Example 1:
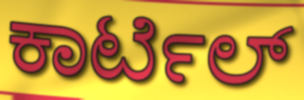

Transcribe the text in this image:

ಕಾರ್ಟೆಲ್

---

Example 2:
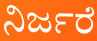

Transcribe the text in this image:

ನಿರ್ಜರೆ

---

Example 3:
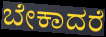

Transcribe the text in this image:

ಬೇಕಾದರೆ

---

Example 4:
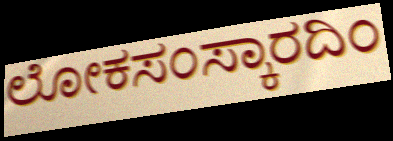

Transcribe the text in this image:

ಲೋಕಸಂಸ್ಕಾರದಿಂ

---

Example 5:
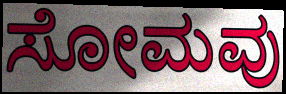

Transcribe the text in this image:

ಸೋಮವು